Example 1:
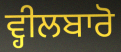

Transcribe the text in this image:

ਵ੍ਹੀਲਬਾਰੋ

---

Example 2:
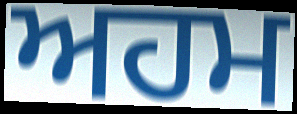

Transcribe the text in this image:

ਅਹਮ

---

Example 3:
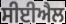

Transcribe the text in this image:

ਸੀਈਐਲ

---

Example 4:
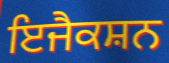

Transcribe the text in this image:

ਇਜੈਕਸ਼ਨ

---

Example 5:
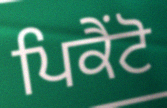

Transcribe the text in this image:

ਪਿਕੈਂਟੋ